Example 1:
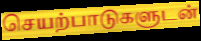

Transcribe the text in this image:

செயற்பாடுகளுடன்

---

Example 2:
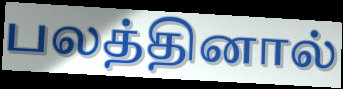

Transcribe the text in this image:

பலத்தினால்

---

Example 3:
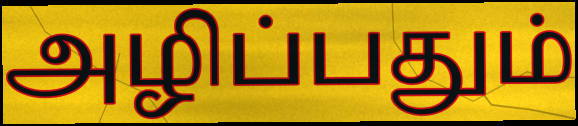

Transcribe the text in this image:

அழிப்பதும்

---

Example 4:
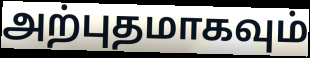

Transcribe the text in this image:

அற்புதமாகவும்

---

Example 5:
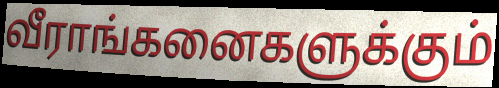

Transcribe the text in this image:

வீராங்கனைகளுக்கும்